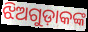
ଝିଅଗୁଡ଼ାକଙ୍କ